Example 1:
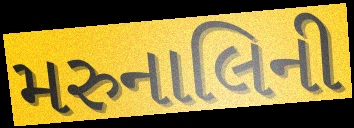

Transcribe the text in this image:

મરુનાલિની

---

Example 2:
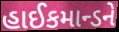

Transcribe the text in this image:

હાઈકમાન્ડને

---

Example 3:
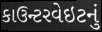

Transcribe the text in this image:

કાઉન્ટરવેઇટનું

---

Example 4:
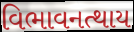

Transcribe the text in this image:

વિભાવનત્થાય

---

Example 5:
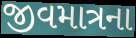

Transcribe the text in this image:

જીવમાત્રના